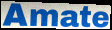
Amate